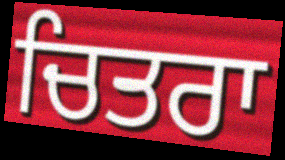
ਚਿਤਰਾ